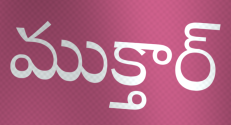
ముక్తార్